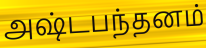
அஷ்டபந்தனம்